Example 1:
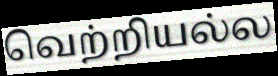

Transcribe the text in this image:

வெற்றியல்ல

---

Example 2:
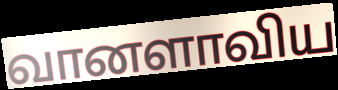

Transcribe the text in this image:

வானளாவிய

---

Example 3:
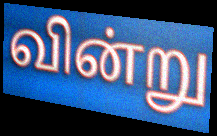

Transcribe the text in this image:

வின்று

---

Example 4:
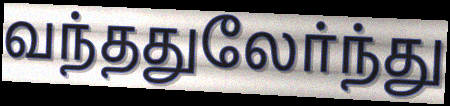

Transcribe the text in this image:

வந்ததுலேர்ந்து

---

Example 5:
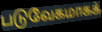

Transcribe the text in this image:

படுவேகமாகக்